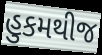
હુકમથીજ